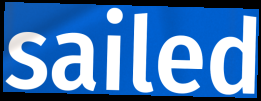
sailed